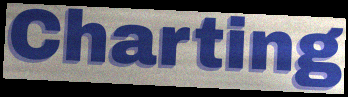
Charting